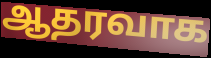
ஆதரவாக